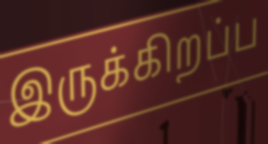
இருக்கிறப்ப